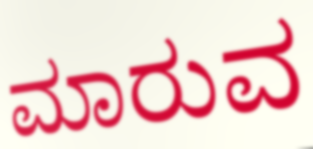
ಮಾರುವ